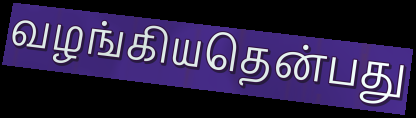
வழங்கியதென்பது